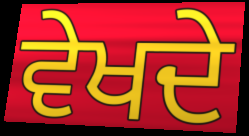
ਵੇਖਦੇ